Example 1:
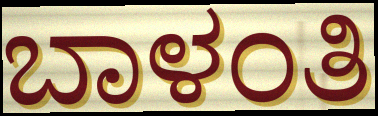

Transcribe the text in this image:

ಬಾಳಂತಿ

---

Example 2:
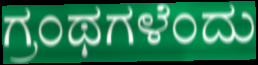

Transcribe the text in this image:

ಗ್ರಂಥಗಳೆಂದು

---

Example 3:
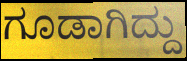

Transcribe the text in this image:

ಗೂಡಾಗಿದ್ದು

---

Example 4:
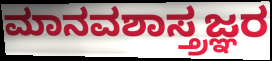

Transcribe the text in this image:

ಮಾನವಶಾಸ್ತ್ರಜ್ಞರ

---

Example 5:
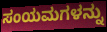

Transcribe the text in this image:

ಸಂಯಮಗಳನ್ನು